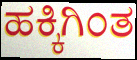
ಹಕ್ಕಿಗಿಂತ